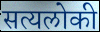
सत्यलोकी